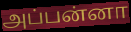
அப்பன்னா